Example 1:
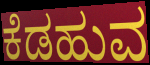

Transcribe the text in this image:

ಕೆಡಹುವ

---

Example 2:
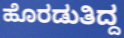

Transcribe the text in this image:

ಹೊರಡುತಿದ್ದ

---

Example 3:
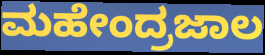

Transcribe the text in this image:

ಮಹೇಂದ್ರಜಾಲ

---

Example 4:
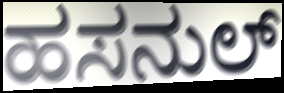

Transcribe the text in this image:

ಹಸನುಲ್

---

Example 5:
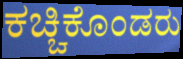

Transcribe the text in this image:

ಕಚ್ಚಿಕೊಂಡರು